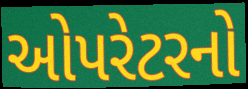
ઓપરેટરનો